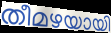
തീമഴയായി